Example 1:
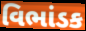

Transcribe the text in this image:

વિભાંડક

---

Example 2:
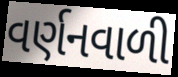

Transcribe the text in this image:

વર્ણનવાળી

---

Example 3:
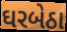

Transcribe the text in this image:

ઘરબેઠા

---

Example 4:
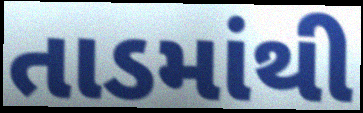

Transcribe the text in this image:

તાડમાંથી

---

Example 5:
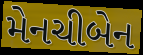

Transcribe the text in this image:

મેનચીબેન